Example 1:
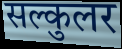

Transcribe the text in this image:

सल्कुलर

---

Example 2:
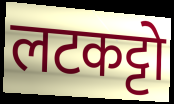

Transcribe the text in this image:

लटकट्टो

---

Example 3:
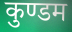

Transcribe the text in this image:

कुण्डम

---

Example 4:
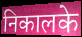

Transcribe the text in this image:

निकालके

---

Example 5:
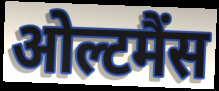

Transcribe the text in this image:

ओल्टमैंस